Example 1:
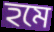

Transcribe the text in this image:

হমে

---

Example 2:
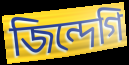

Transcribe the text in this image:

জিন্দেগি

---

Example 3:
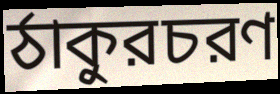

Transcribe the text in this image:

ঠাকুরচরণ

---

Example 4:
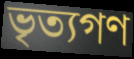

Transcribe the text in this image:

ভৃত্যগণ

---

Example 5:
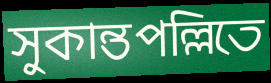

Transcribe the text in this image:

সুকান্তপল্লিতে